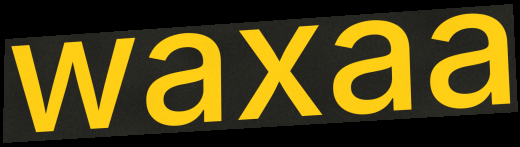
waxaa